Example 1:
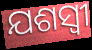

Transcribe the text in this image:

ଯଶସ୍ବୀ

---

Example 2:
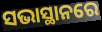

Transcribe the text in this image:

ସଭାସ୍ଥାନରେ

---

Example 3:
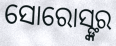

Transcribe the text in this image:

ସୋରୋସ୍ଙ୍କର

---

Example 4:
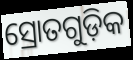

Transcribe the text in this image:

ସ୍ରୋତଗୁଡ଼ିକ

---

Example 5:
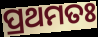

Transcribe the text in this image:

ପ୍ରଥମତଃ